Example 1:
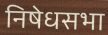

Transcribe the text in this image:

निषेधसभा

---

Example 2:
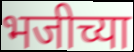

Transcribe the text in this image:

भजीच्या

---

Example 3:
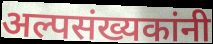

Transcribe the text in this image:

अल्पसंख्यकांनी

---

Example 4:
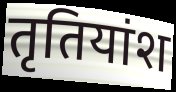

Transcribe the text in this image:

तृतियांश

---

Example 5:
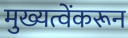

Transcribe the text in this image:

मुख्यत्वेंकरून